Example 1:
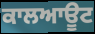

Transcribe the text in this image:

ਕਾਲਆਊਟ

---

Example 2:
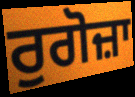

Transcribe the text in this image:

ਰੁਗੋਜ਼ਾ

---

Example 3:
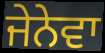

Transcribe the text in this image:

ਜੇਨੇਵਾ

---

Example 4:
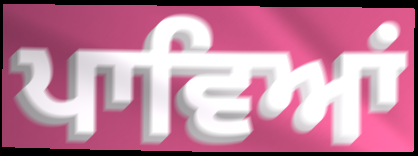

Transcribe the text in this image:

ਪਾਵਿਆਂ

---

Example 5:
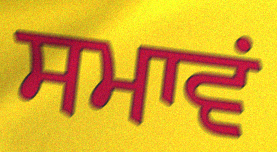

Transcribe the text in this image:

ਸਮਾਵਂ